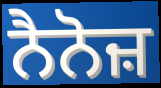
ਨੈਨੋਜ਼